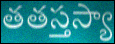
తతస్తస్యా